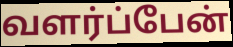
வளர்ப்பேன்